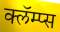
क्लॅम्प्स